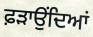
ਫ਼ੜਾਉਂਦਿਆਂ